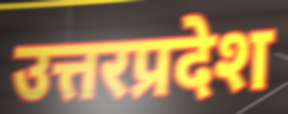
उत्तरप्रदेश